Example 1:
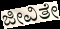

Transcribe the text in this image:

ಜೀವಿತೇ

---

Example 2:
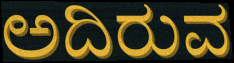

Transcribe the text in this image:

ಅದಿರುವ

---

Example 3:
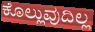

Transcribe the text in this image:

ಕೊಲ್ಲುವುದಿಲ್ಲ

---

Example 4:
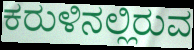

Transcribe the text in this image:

ಕರುಳಿನಲ್ಲಿರುವ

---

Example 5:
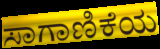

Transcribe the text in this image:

ಸಾಗಾಣಿಕೆಯ